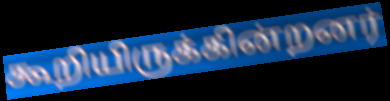
கூறியிருக்கின்றனர்